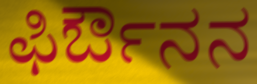
ಫಿರ್ಔನನ